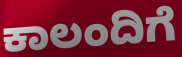
ಕಾಲಂದಿಗೆ